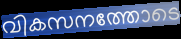
വികസനത്തോടെ